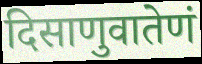
दिसाणुवातेणं